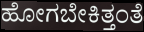
ಹೋಗಬೇಕಿತ್ತಂತೆ